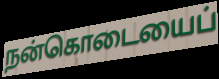
நன்கொடையைப்